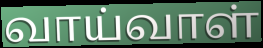
வாய்வாள்